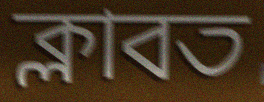
ক্লাবত